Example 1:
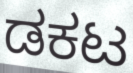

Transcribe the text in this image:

ಡಕಟ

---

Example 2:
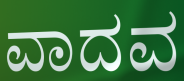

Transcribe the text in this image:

ವಾದವ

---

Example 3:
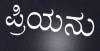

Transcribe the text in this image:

ಪ್ರಿಯನು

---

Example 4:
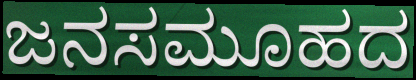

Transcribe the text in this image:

ಜನಸಮೂಹದ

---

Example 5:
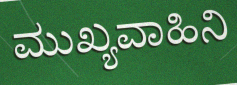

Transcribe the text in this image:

ಮುಖ್ಯವಾಹಿನಿ